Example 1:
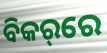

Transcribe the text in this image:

ବିକର୍‌ରେ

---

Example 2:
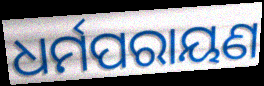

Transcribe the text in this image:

ଧର୍ମପରାୟଣ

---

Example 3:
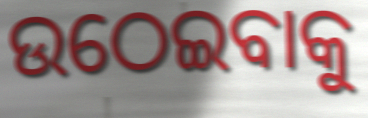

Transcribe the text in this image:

ଉଠେଇବାକୁ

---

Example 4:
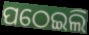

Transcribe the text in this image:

ପଠେଇଲି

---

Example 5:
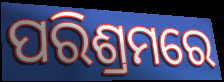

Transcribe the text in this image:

ପରିଶ୍ରମରେ